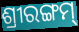
ଶ୍ରୀରଙ୍ଗମ୍